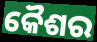
କୈଶର